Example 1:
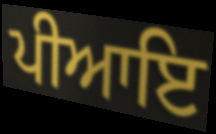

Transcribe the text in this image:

ਪੀਆਇ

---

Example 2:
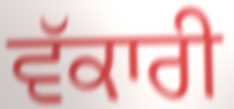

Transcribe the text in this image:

ਵੱਕਾਰੀ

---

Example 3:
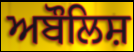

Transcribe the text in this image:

ਅਬੌਲਿਸ਼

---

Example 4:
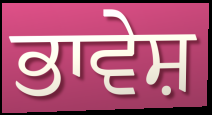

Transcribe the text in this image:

ਭਾਵੇਸ਼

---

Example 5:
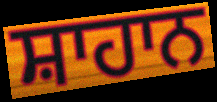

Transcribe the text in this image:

ਸ਼ਾਹਾਨ